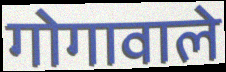
गोगावाले